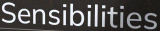
Sensibilities